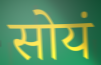
सोयं